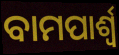
ବାମପାର୍ଶ୍ଵ